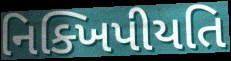
નિક્ખિપીયતિ